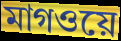
মাগওয়ে